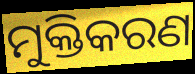
ମୁକ୍ତିକରଣ